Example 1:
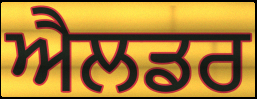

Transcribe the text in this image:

ਐਲਡਰ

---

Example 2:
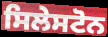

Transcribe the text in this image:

ਸਿਲੇਸਟੋਨ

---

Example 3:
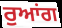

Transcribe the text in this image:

ਰੁਆਂਗ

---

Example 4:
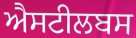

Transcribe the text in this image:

ਐਸਟੀਲਬਸ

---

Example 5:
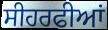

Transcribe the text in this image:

ਸੀਹਰਫੀਆਂ